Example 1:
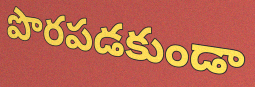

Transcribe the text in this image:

పొరపడకుండా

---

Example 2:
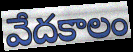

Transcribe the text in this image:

వేదకాలం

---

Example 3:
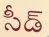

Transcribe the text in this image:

సీడ్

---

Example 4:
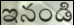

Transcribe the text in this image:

ఇనండి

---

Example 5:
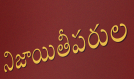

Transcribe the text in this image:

నిజాయితీపరుల